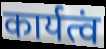
कार्यत्वं